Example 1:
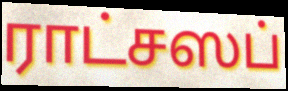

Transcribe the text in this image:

ராட்சஸப்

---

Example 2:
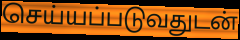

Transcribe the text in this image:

செய்யப்படுவதுடன்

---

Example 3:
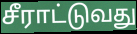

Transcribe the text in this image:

சீராட்டுவது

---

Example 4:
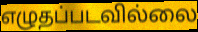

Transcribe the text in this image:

எழுதப்படவில்லை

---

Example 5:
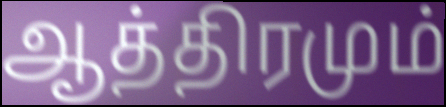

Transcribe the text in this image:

ஆத்திரமும்